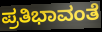
ಪ್ರತಿಭಾವಂತೆ